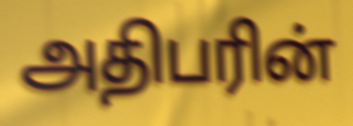
அதிபரின்